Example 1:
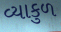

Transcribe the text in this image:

વ્યાકુળ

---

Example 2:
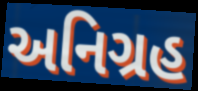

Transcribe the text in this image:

અનિગ્રહ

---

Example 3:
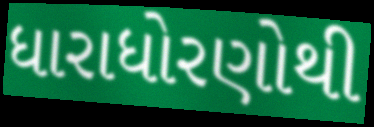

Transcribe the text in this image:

ધારાધોરણોથી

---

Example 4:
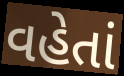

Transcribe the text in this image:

વહેતાં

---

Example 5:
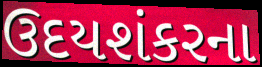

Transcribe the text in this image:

ઉદયશંકરના